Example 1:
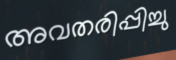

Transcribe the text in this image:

അവതരിപ്പിച്ചു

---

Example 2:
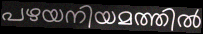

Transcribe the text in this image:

പഴയനിയമത്തിൽ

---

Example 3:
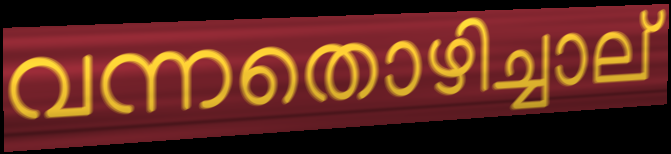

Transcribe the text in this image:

വന്നതൊഴിച്ചാല്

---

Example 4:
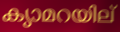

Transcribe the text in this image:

ക്യാമറയില്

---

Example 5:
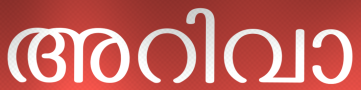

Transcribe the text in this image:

അറിവാ